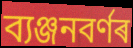
ব্যঞ্জনবৰ্ণৰ